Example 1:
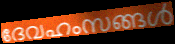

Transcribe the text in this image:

ദേവഹംസങ്ങൾ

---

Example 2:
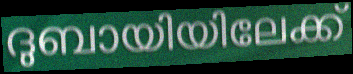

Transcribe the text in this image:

ദുബായിയിലേക്ക്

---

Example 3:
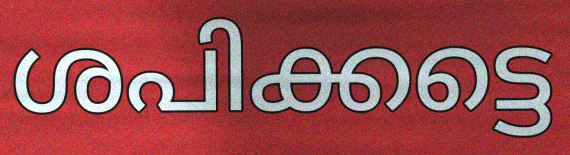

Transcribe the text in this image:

ശപിക്കട്ടെ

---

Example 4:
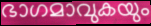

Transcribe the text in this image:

ഭാഗമാവുകയും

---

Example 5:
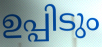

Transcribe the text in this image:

ഉപ്പിടും